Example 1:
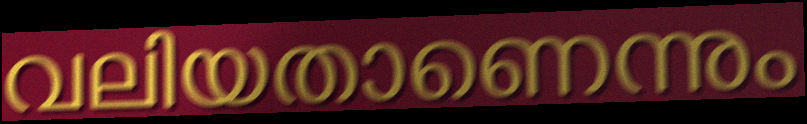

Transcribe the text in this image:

വലിയതാണെന്നും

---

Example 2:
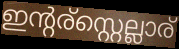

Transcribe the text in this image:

ഇന്റര്സ്റ്റെല്ലാര്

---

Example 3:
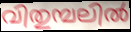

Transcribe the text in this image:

വിതുമ്പലിൽ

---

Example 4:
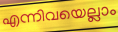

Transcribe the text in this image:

എന്നിവയെല്ലാം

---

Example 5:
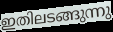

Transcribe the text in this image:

ഇതിലടങ്ങുന്നു